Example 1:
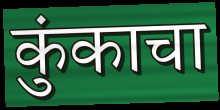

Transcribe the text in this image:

कुंकाचा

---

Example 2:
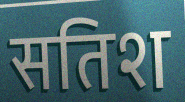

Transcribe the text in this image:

सतिश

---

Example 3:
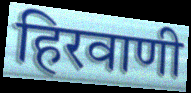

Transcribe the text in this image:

हिरवाणी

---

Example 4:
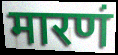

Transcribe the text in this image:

मारणं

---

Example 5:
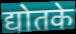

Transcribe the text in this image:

द्योतके